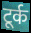
टूर्क